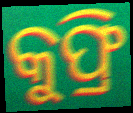
କୁଫ୍ରି